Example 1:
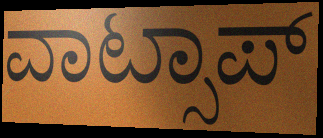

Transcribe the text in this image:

ವಾಟ್ಸಾಪ್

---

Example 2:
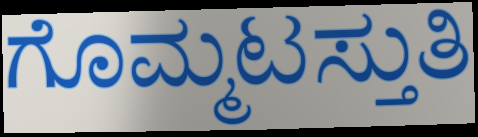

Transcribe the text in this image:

ಗೊಮ್ಮಟಸ್ತುತಿ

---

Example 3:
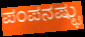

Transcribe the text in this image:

ಪಂಪನಷ್ಟು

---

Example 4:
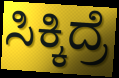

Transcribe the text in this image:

ಸಿಕ್ಕಿದ್ರೆ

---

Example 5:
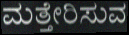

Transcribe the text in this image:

ಮತ್ತೇರಿಸುವ